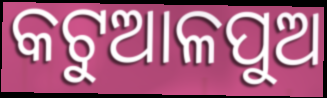
କଟୁଆଳପୁଅ